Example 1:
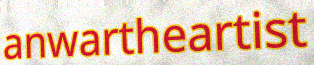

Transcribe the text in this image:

anwartheartist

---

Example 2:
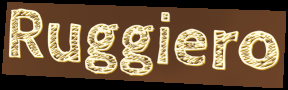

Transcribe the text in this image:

Ruggiero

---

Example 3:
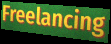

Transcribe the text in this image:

Freelancing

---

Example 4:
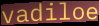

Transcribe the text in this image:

vadiloe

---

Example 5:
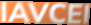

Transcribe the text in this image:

IAVCEI